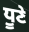
ਧੂਣੇ